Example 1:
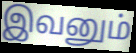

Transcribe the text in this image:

இவனும்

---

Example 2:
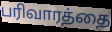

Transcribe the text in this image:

பரிவாரத்தை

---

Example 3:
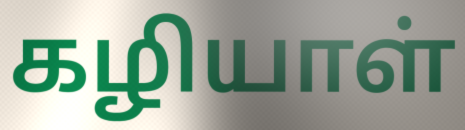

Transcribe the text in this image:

கழியாள்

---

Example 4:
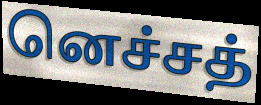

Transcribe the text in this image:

னெச்சத்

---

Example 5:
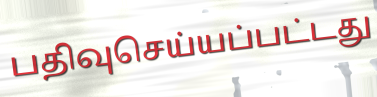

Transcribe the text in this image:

பதிவுசெய்யப்பட்டது